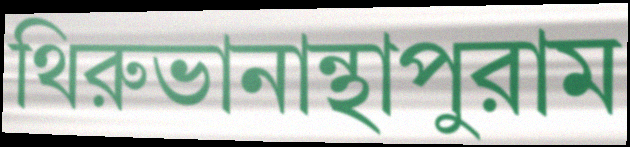
থিরুভানান্থাপুরাম